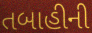
તબાહીની